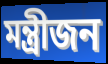
মন্ত্ৰীজন